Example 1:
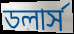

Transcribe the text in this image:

ডলার্স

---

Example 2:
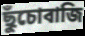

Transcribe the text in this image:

ছুঁচোবাজি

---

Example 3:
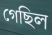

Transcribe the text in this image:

গেছিল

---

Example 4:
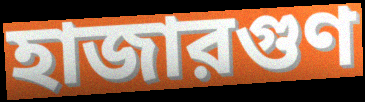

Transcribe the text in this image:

হাজারগুণ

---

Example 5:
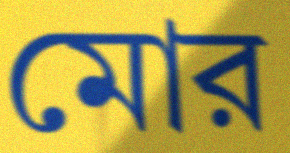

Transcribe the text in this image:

মোর